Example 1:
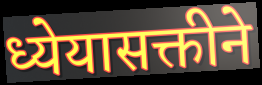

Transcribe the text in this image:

ध्येयासक्तीने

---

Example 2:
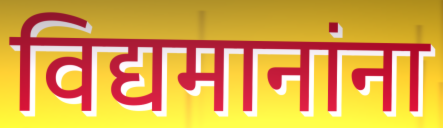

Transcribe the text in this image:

विद्यमानांना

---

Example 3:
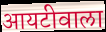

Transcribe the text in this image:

आयटीवाला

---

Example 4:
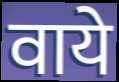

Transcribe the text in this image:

वाये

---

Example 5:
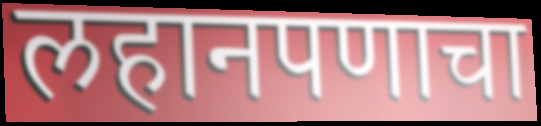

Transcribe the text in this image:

लहानपणाचा